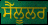
ਸੈੱਲੂਲਰ